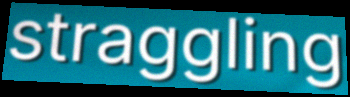
straggling